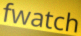
fwatch